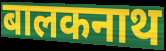
बालकनाथ